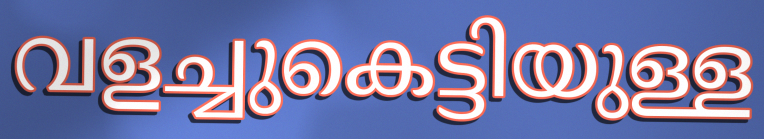
വളച്ചുകെട്ടിയുള്ള